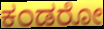
ಕಂಡರೋ